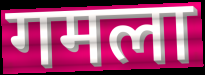
गमला